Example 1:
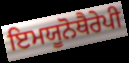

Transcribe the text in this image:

ਇਮਯੂਨੋਥੈਰੇਪੀ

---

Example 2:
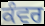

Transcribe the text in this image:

ਕੰਵਰ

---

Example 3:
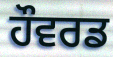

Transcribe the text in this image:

ਹੌਵਰਡ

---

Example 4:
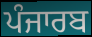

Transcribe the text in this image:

ਪੰਜਾਰਬ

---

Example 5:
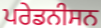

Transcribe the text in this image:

ਪਰੇਡਨੀਸਨ